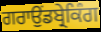
ਗਰਾਉਂਡਬ੍ਰੇਕਿੰਗ